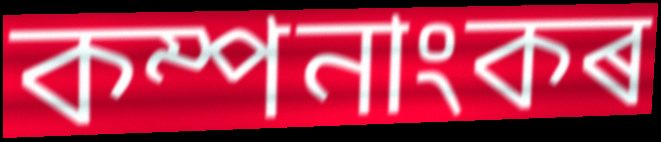
কম্পনাংকৰ